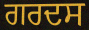
ਗਰਦਸ